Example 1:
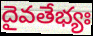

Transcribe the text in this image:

దైవతేభ్యః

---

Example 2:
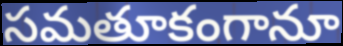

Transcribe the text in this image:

సమతూకంగానూ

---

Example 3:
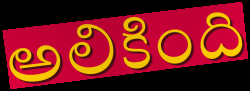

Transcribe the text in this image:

అలికింది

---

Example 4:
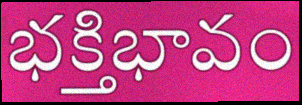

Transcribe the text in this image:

భక్తిభావం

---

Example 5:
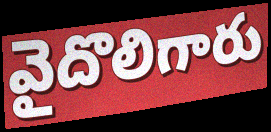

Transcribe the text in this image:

వైదొలిగారు